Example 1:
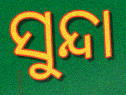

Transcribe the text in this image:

ସୁନ୍ଦା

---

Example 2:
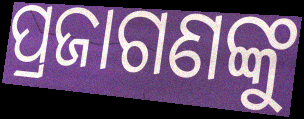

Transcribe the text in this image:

ପ୍ରଜାଗଣଙ୍କୁ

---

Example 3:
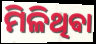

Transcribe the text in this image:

ମିଳିଥିଵା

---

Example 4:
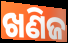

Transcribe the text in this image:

ଖଣିଜ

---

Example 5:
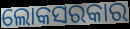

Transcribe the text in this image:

ଲୋକସରକାର